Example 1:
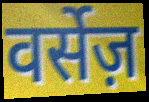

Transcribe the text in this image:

वर्सेज़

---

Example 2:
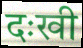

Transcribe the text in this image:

दःखी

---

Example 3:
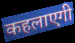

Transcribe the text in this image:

कहलाएगी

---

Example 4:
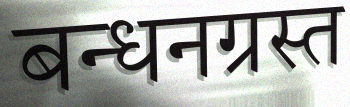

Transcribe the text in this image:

बन्धनग्रस्त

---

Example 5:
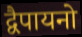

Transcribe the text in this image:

द्वैपायनो